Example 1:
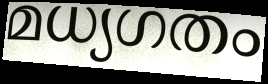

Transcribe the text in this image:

മധ്യഗതം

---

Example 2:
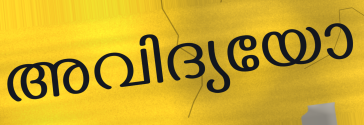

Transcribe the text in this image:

അവിദ്യയോ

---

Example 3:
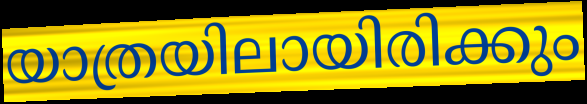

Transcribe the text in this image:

യാത്രയിലായിരിക്കും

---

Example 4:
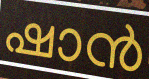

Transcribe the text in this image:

ഷാൻ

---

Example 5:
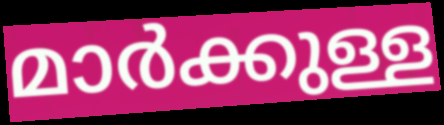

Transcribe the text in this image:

മാർക്കുള്ള